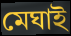
মেঘাই